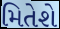
મિતેશે